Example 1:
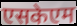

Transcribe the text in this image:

एसकेएम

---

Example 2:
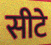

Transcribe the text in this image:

सीटे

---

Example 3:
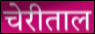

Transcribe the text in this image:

चेरीताल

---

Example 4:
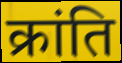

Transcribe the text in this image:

क्रांति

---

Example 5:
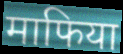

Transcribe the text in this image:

माफिया